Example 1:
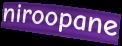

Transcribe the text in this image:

niroopane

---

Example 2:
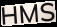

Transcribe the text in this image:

HMS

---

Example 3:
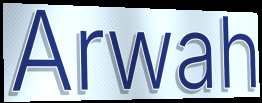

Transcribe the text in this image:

Arwah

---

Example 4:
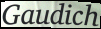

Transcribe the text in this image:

Gaudich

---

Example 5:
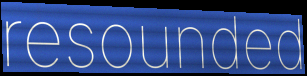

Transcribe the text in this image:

resounded